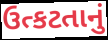
ઉત્કટતાનું